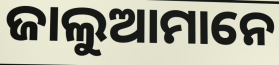
ଜାଲୁଆମାନେ